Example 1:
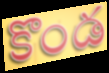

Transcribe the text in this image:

కొండ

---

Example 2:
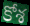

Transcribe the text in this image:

కోశ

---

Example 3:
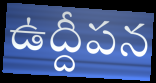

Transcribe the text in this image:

ఉద్దీపన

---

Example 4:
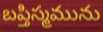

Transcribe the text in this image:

బప్తిస్మమును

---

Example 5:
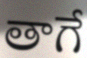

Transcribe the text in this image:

తాగే